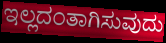
ಇಲ್ಲದಂತಾಗಿಸುವುದು